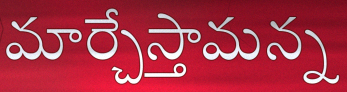
మార్చేస్తామన్న